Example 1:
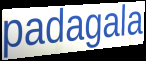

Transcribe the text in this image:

padagala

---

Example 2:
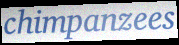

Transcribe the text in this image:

chimpanzees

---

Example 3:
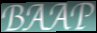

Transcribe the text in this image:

BAAP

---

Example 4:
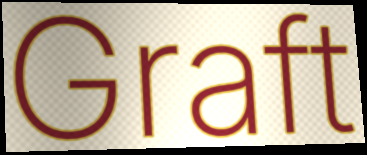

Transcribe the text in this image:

Graft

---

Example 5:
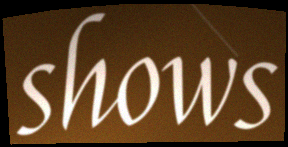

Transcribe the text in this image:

shows